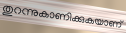
തുറന്നുകാണിക്കുകയാണ്